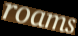
roams